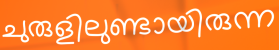
ചുരുളിലുണ്ടായിരുന്ന